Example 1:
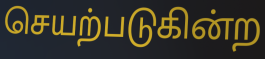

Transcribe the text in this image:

செயற்படுகின்ற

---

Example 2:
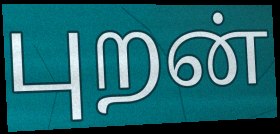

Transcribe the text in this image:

புறன்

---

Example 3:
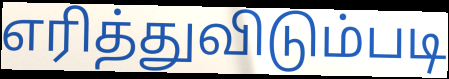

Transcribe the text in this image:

எரித்துவிடும்படி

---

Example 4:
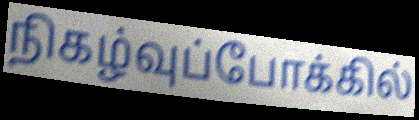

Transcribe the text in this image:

நிகழ்வுப்போக்கில்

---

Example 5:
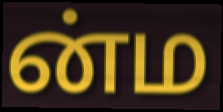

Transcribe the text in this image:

ன்ம